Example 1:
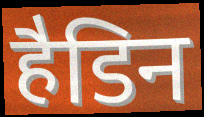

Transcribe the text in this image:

हैडिन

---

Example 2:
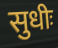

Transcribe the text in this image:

सुधीः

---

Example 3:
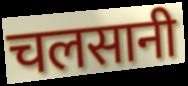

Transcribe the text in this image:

चलसानी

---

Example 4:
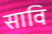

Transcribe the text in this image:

सावि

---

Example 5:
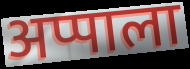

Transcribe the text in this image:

अप्पाला